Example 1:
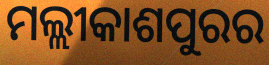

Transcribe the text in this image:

ମଲ୍ଲୀକାଶପୁରର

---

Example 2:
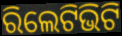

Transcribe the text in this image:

ରିଲେଟିଭିଟି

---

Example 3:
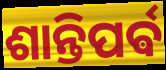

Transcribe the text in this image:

ଶାନ୍ତିପର୍ଵ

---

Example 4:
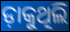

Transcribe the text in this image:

ଡ଼ାକୁଥିଲି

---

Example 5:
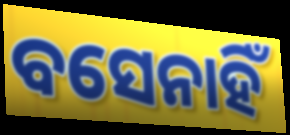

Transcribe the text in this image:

ବସେନାହିଁ